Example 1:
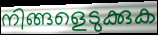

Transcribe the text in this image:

നിങ്ങളെടുക്കുക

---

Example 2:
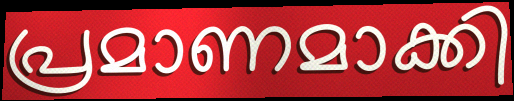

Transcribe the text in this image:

പ്രമാണമാക്കി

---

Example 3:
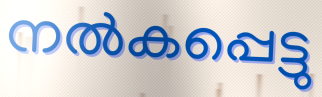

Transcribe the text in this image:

നൽകപ്പെട്ടു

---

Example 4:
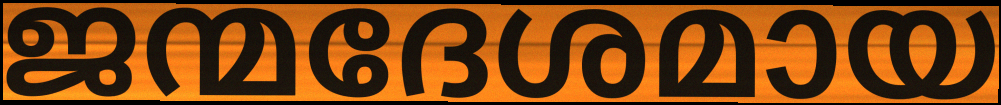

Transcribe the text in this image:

ജന്മദേശമായ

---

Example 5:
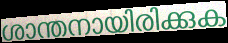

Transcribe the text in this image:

ശാന്തനായിരിക്കുക